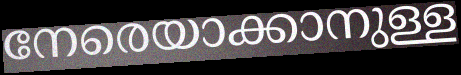
നേരെയാക്കാനുള്ള